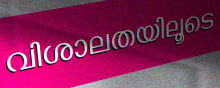
വിശാലതയിലൂടെ